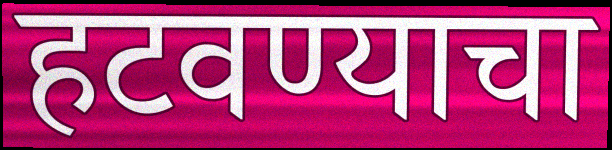
हटवण्याचा